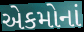
એકમોનાં